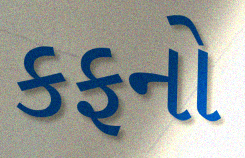
કફનો